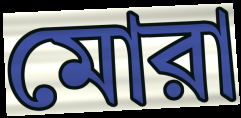
মোরা